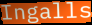
Ingalls